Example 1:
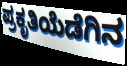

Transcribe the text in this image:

ಪ್ರಕೃತಿಯೆಡೆಗಿನ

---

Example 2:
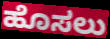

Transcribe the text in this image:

ಹೊಸಲು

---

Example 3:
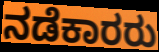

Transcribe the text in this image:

ನಡೆಕಾರರು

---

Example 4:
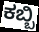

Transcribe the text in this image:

ಕಬ್ಬಿ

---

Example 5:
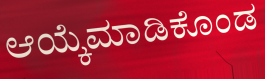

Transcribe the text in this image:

ಆಯ್ಕೆಮಾಡಿಕೊಂಡ